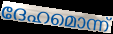
ദേഹമൊന്ന്